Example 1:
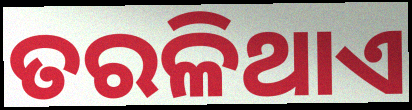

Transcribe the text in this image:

ତରଳିଥାଏ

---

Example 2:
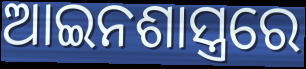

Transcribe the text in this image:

ଆଇନଶାସ୍ତ୍ରରେ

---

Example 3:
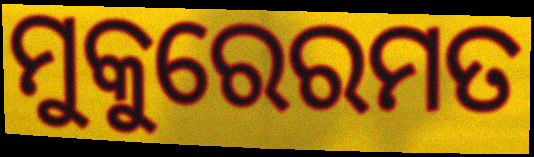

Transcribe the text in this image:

ମୁକୁରେରମତ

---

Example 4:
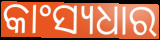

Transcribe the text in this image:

କାଂସ୍ୟଧାର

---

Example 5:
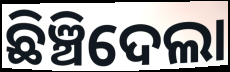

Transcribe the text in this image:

ଛିଞ୍ଚିଦେଲା